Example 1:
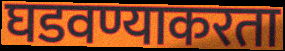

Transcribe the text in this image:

घडवण्याकरता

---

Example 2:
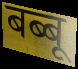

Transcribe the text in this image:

बब्बू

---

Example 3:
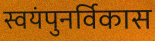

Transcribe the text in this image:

स्वयंपुनर्विकास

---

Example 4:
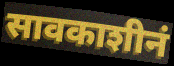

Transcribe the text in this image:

सावकाशीनं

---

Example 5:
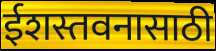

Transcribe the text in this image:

ईशस्तवनासाठी